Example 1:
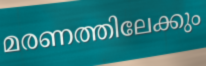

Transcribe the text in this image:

മരണത്തിലേക്കും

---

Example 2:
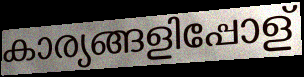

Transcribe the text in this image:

കാര്യങ്ങളിപ്പോള്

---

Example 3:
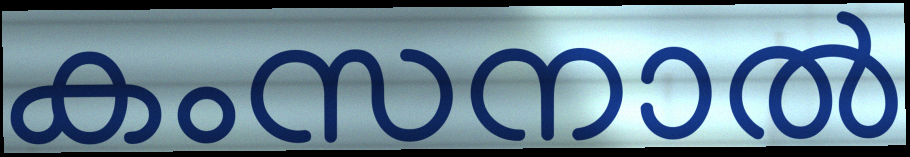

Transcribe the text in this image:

കംസനാൽ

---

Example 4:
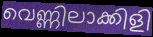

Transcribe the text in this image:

വെണ്ണിലാക്കിളി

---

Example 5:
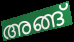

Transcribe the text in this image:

അങ്ങ്